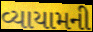
વ્યાયામની